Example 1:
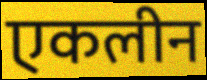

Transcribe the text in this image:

एकलीन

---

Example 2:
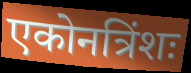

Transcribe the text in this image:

एकोनत्रिंशः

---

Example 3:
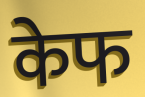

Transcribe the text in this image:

केफ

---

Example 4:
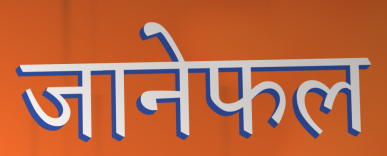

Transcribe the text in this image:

जानेफल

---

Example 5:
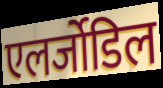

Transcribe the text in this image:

एलर्जोडिल